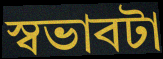
স্বভাবটা